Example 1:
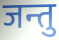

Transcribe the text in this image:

जन्तु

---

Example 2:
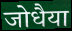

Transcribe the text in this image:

जोधैया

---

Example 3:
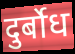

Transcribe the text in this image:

दुर्बोध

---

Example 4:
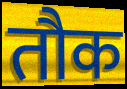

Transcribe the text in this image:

तौक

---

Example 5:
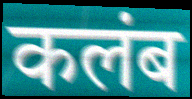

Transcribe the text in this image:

कलंब